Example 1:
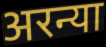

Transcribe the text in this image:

अरन्या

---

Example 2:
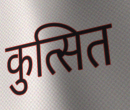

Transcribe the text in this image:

कुत्सित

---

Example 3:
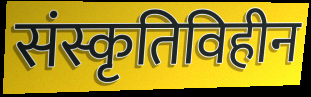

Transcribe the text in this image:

संस्कृतिविहीन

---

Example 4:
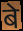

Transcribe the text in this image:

बे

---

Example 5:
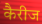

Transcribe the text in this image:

कैरीज